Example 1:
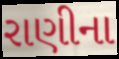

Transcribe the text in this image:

રાણીના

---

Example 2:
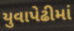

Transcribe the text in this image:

યુવાપેઢીમાં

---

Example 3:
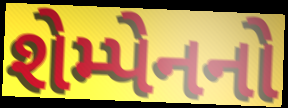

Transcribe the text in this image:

શેમ્પેનનો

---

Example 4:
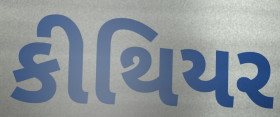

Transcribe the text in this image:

કીથિયર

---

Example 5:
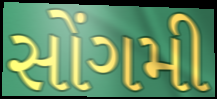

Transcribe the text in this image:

સોંગમી